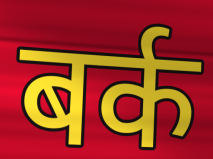
बर्क